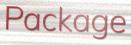
Package